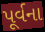
પૂર્વના